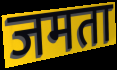
जमता